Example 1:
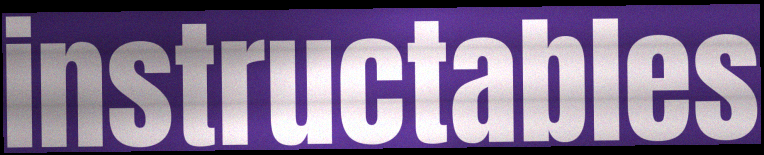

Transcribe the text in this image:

instructables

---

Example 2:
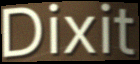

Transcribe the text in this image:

Dixit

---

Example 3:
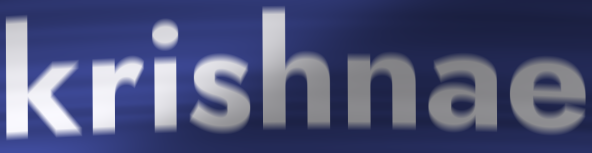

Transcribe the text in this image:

krishnae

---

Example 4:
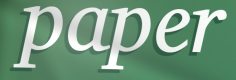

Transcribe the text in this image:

paper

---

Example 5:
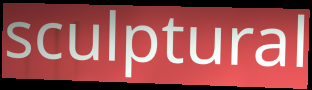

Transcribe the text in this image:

sculptural